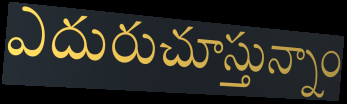
ఎదురుచూస్తున్నాం